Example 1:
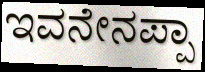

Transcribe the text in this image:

ಇವನೇನಪ್ಪಾ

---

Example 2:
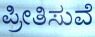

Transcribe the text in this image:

ಪ್ರೀತಿಸುವೆ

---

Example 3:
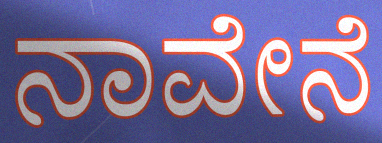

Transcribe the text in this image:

ನಾವೇನೆ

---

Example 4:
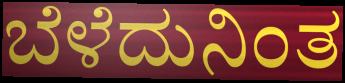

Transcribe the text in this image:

ಬೆಳೆದುನಿಂತ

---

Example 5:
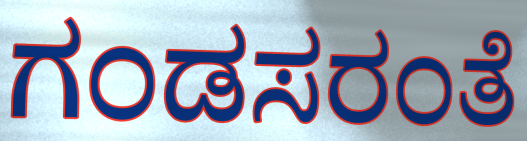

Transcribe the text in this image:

ಗಂಡಸರಂತೆ